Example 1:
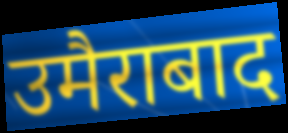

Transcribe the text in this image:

उमैराबाद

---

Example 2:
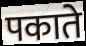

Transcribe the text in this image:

पकाते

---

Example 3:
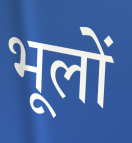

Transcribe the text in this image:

भूलों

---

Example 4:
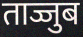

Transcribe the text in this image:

ताज्जुब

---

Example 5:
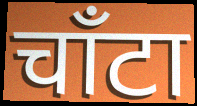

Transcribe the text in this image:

चाँटा